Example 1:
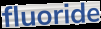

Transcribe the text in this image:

fluoride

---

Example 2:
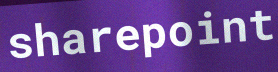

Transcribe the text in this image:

sharepoint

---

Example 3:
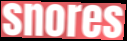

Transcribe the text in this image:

snores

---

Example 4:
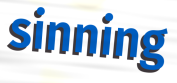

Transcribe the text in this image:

sinning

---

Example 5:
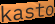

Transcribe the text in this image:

kasto